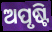
ଅପୃଷ୍ଟି